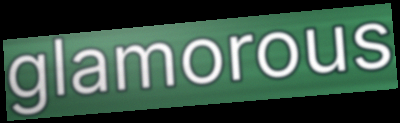
glamorous